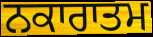
ਨਕਾਰਾਤਮ